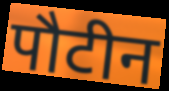
पौटीन